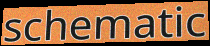
schematic